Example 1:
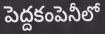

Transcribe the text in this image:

పెద్దకంపెనీలో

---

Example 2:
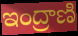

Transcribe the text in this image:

ఇంద్రాణి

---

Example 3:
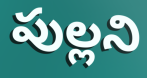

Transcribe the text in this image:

పుల్లని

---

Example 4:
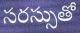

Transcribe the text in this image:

సరస్సుతో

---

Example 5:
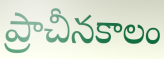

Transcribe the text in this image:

ప్రాచీనకాలం